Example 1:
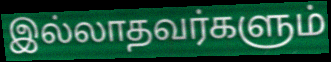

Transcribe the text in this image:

இல்லாதவர்களும்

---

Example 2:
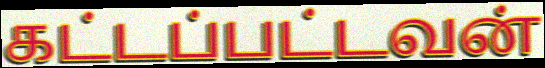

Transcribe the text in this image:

கட்டப்பட்டவன்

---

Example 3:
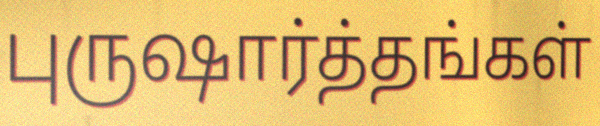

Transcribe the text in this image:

புருஷார்த்தங்கள்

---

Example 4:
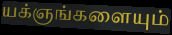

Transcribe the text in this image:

யக்ஞங்களையும்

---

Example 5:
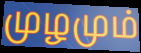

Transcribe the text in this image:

முழமும்